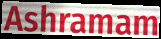
Ashramam